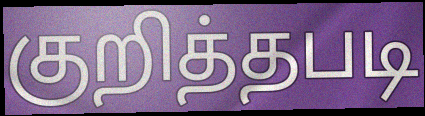
குறித்தபடி